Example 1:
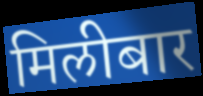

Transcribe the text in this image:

मिलीबार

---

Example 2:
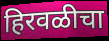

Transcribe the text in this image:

हिरवळीचा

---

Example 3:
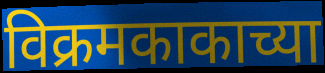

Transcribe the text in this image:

विक्रमकाकाच्या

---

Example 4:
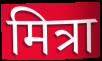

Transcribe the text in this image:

मित्रा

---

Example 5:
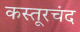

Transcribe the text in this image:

कस्तूरचंद